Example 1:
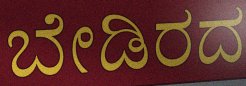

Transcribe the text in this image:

ಬೇಡಿರದ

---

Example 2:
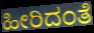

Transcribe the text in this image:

ಹೀರಿದಂತೆ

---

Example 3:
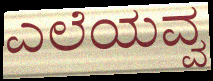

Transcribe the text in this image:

ಎಲೆಯವ್ವ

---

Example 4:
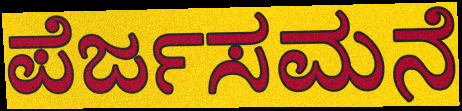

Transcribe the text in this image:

ಪೆರ್ಜಸಮನೆ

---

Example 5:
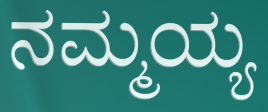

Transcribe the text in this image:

ನಮ್ಮಯ್ಯ